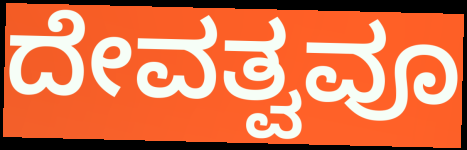
ದೇವತ್ವವೂ